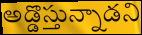
అడ్డొస్తున్నాడని